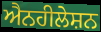
ਐਨਹੀਲੇਸ਼ਨ